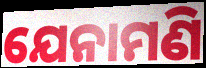
ଯେନାମଣି